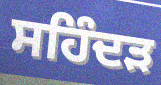
ਸਹਿੰਦੜ